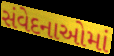
સંવેદનાઓમાં